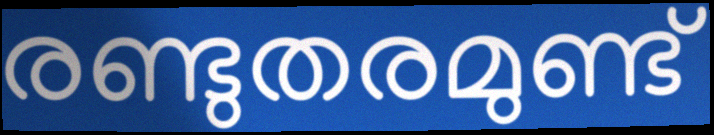
രണ്ടുതരമുണ്ട്